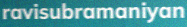
ravisubramaniyan